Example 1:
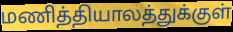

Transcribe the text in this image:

மணித்தியாலத்துக்குள்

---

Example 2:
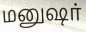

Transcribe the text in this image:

மனுஷர்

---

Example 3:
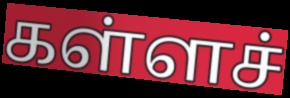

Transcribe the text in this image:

கள்ளச்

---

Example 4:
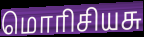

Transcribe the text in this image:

மொரிசியசு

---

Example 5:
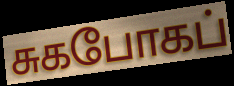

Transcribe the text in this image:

சுகபோகப்